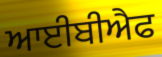
ਆਈਬੀਐਫ